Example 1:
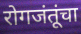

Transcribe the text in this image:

रोगजंतूंचा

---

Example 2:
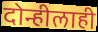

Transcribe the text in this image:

दोन्हीलाही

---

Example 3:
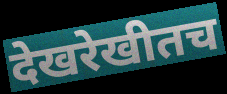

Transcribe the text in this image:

देखरेखीतच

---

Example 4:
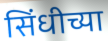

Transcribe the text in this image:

सिंधीच्या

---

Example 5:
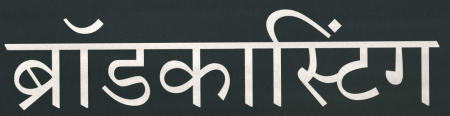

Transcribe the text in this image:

ब्रॉडकास्टिंग